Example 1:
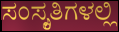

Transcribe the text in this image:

ಸಂಸ್ಕೃತಿಗಳಲ್ಲಿ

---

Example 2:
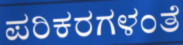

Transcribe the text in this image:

ಪರಿಕರಗಳಂತೆ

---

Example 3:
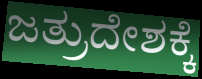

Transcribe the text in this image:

ಜತ್ರುದೇಶಕ್ಕೆ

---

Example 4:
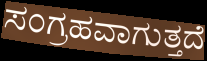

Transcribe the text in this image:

ಸಂಗ್ರಹವಾಗುತ್ತದೆ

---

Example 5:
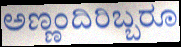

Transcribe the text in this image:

ಅಣ್ಣಂದಿರಿಬ್ಬರೂ